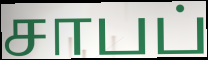
சாபப்